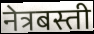
नेत्रबस्ती